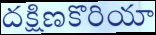
దక్షిణకొరియా